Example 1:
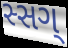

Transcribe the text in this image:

સ્સગ્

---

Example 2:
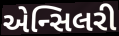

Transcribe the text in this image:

એન્સિલરી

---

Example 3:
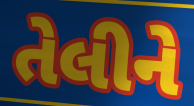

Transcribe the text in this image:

તેલીને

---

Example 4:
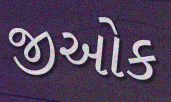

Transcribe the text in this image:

જીઓક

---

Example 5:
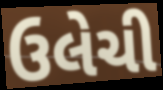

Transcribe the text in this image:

ઉલેચી